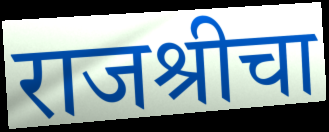
राजश्रीचा